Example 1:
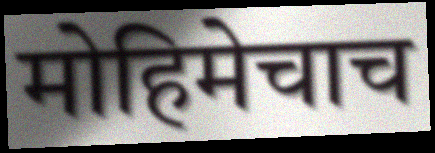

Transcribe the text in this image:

मोहिमेचाच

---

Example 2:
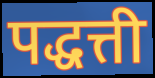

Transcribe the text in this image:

पद्धत्ती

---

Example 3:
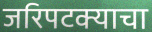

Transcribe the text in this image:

जरिपटक्याचा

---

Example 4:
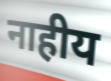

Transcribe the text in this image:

नाहीय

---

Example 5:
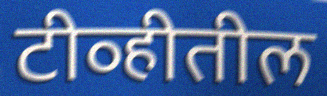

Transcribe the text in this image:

टीव्हीतील